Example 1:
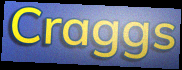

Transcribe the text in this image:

Craggs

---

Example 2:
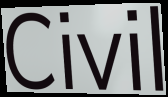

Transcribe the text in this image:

Civil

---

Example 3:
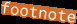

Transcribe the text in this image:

footnote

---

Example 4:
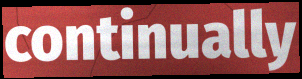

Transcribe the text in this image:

continually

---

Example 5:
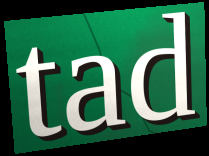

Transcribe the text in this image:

tad